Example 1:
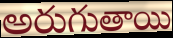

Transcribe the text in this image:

అరుగుతాయి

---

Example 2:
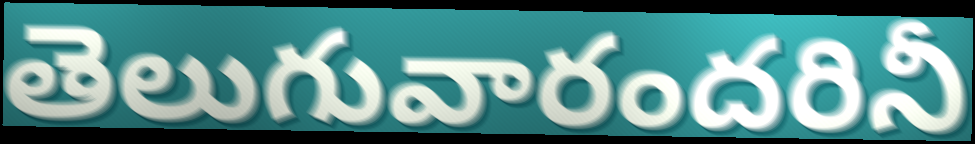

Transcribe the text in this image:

తెలుగువారందరినీ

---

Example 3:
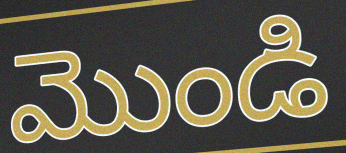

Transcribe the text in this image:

మొండి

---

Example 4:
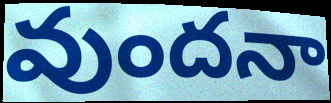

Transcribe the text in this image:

వుందనా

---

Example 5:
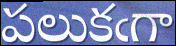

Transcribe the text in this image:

పలుకఁగా